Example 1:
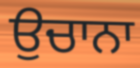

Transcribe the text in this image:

ਉਚਾਨਾ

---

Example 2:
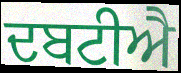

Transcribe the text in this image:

ਦਬਟੀਐ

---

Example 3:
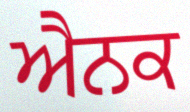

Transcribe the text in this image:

ਐਨਕ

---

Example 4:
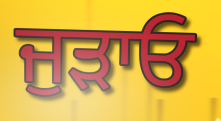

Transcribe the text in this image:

ਜੁੜਾਓ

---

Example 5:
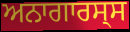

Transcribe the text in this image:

ਅਨਾਗਾਰਸ੍ਸ